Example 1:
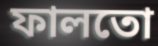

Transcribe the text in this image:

ফালতো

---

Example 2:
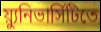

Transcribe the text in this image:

য়্যুনিভার্সিটিতে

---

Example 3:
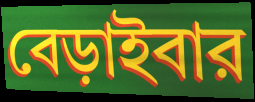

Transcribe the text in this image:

বেড়াইবার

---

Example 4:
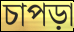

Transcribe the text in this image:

চাপড়া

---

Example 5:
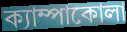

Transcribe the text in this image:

ক্যাম্পাকোলা